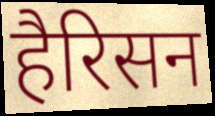
हैरिसन